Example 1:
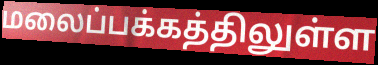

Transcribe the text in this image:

மலைப்பக்கத்திலுள்ள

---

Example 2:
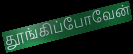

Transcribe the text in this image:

தூங்கிப்போவேன்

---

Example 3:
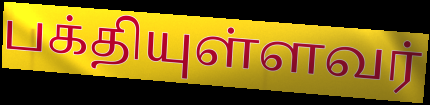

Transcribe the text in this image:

பக்தியுள்ளவர்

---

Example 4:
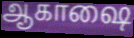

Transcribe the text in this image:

ஆகாஷை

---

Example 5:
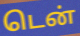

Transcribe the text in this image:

டென்